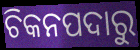
ଚିକନପଦାରୁ